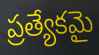
ప్రత్యేకమై